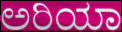
ಅರಿಯಾ